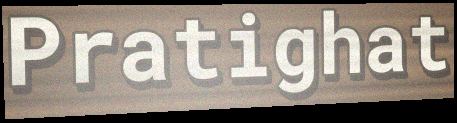
Pratighat